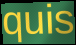
quis